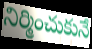
నిర్మించుకునే